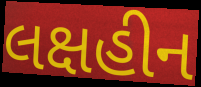
લક્ષહીન